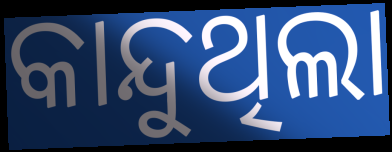
କାନ୍ଦୁଥିଲା